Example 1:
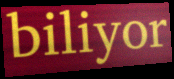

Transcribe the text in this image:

biliyor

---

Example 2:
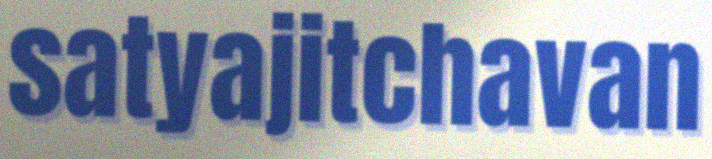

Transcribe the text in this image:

satyajitchavan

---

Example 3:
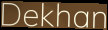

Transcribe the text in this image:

Dekhan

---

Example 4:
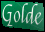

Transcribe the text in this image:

Golde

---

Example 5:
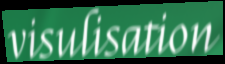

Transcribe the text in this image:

visulisation